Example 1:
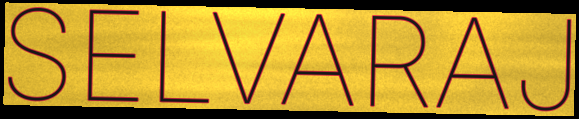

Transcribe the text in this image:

SELVARAJ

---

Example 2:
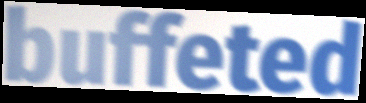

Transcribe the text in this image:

buffeted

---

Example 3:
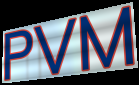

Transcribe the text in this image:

PVM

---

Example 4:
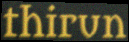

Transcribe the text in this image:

thirun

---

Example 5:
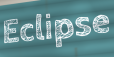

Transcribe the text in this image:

Eclipse